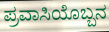
ಪ್ರವಾಸಿಯೊಬ್ಬನ